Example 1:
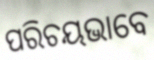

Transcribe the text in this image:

ପରିଚୟଭାବେ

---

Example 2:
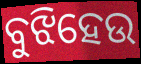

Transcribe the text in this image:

ବୁଝିହେଉ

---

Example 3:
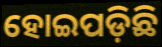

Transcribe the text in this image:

ହୋଇପଡ଼ିଛି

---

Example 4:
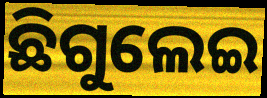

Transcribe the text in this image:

ଛିଗୁଲେଇ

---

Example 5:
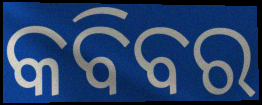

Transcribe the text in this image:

କବିବର